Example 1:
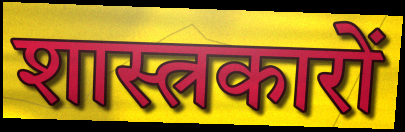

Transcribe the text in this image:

शास्त्रकारों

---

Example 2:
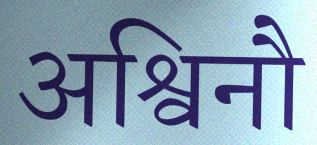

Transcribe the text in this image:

अश्विनौ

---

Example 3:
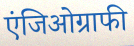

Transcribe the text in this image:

एंजिओग्राफी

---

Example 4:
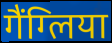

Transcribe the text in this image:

गैंग्लिया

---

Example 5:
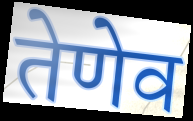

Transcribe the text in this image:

तेणेव